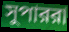
সুপাররা